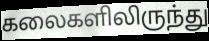
கலைகளிலிருந்து